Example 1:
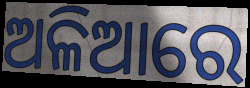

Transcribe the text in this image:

ଅଳିଆରେ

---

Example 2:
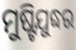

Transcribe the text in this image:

ମୁଷ୍ଟିଯୁଦ୍ଧର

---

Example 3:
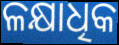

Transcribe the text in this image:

ଳକ୍ଷାଧିକ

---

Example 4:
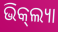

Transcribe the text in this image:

ଭିକ୍‌ଲ୍ୟା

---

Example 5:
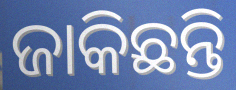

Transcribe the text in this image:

ଜାକିଛନ୍ତି